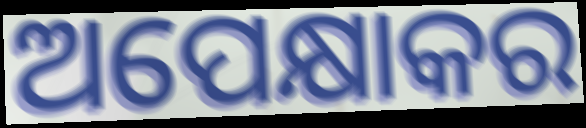
ଅପେକ୍ଷାକର